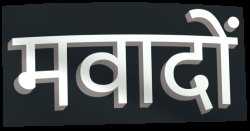
मवादों